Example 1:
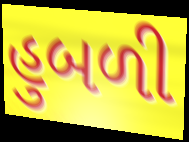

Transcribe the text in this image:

હુબળી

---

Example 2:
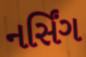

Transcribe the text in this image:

નર્સિંગ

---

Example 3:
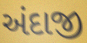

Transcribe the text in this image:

અંદાજી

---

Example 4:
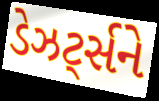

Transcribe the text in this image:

ડેઝર્ટ્સને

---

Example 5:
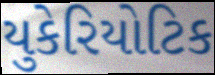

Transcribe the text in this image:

યુકેરિયોટિક